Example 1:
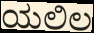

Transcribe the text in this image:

ಯಲಿಲ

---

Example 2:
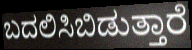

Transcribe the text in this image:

ಬದಲಿಸಿಬಿಡುತ್ತಾರೆ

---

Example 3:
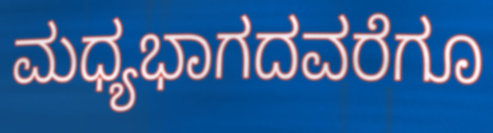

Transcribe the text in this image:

ಮಧ್ಯಭಾಗದವರೆಗೂ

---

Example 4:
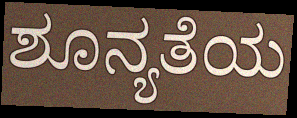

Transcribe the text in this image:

ಶೂನ್ಯತೆಯ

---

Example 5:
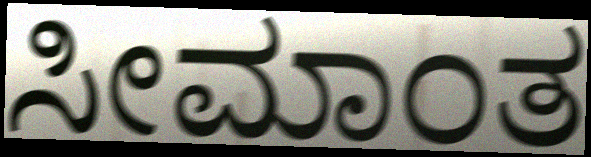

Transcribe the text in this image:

ಸೀಮಾಂತ